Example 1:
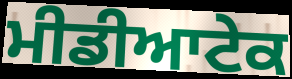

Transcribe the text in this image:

ਮੀਡੀਆਟੇਕ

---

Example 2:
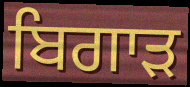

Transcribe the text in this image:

ਬਿਗਾੜ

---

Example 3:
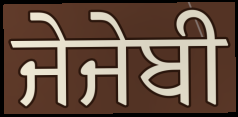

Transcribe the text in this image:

ਜੇਜੇਬੀ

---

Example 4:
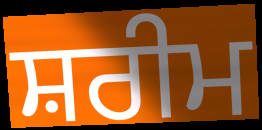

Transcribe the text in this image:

ਸ਼ਰੀਮ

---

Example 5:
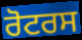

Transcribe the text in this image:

ਰੋਟਰਸ